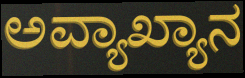
ಅವ್ಯಾಖ್ಯಾನ